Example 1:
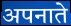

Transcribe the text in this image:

अपनाते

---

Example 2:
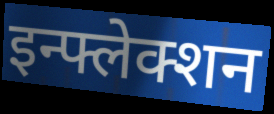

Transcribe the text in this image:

इन्फ्लेक्शन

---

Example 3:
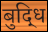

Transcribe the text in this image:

बुद्धि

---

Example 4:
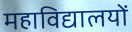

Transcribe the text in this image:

महाविद्यालयों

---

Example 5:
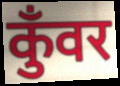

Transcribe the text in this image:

कुँवर